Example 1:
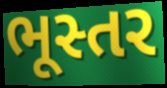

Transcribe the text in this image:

ભૂસ્તર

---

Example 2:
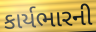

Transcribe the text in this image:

કાર્યભારની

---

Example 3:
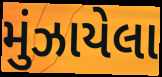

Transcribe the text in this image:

મુંઝાયેલા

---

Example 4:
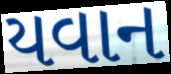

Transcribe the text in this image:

યવાન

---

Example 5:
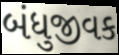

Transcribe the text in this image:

બંધુજીવક